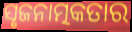
ସୃଜନାତ୍ମକତାର